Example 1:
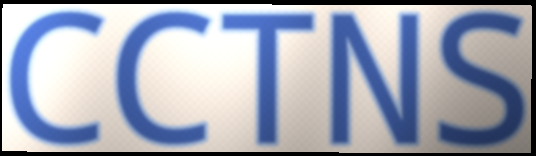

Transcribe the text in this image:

CCTNS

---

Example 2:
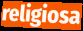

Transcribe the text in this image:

religiosa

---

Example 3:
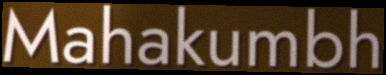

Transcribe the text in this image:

Mahakumbh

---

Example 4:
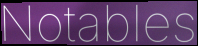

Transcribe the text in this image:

Notables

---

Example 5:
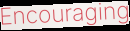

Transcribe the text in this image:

Encouraging